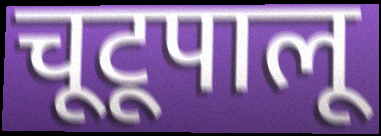
चूटूपालू